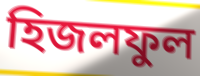
হিজলফুল